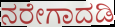
ನರೇಗಾದಡಿ